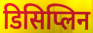
डिसिप्लिन